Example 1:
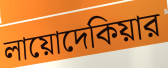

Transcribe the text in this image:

লায়োদেকিয়ার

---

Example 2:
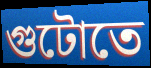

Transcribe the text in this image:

গুটোতে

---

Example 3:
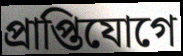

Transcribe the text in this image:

প্রাপ্তিযোগে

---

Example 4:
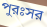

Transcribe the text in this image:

পুরঃসর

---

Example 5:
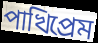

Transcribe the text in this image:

পাখিপ্রেম